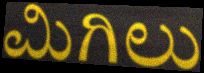
ಮಿಗಿಲು